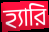
হ্যারি